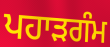
ਪਹਾੜਗੰਮ